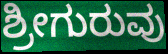
ಶ್ರೀಗುರುವು